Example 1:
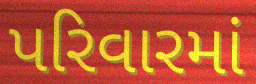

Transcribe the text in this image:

પરિવારમાં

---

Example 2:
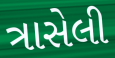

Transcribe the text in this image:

ત્રાસેલી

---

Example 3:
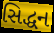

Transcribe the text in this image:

સિદ્ધન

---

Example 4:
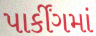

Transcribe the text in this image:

પાર્કીંગમાં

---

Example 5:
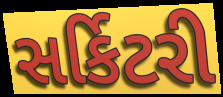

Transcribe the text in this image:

સર્કિટરી